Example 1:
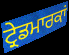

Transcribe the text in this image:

ਟ੍ਰੇਡਮਾਰਕਾਂ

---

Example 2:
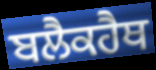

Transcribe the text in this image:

ਬਲੈਕਹੈਥ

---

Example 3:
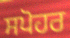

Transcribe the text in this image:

ਸਪੋਹਰ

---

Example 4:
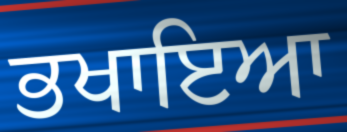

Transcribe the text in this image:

ਭਖਾਇਆ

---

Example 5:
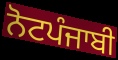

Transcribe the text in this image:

ਨੋਟਪੰਜਾਬੀ